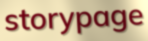
storypage